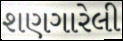
શણગારેલી